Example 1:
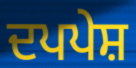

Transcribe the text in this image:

ਦਪਪੇਸ਼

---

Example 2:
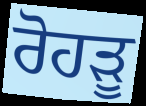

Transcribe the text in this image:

ਰੋਹੜੂ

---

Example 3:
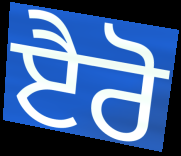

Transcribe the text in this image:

ੲੈਰੋ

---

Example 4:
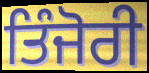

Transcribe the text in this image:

ਤਿੰਜੋਰੀ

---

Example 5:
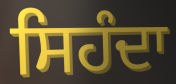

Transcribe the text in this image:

ਸਿਹੰਦਾ